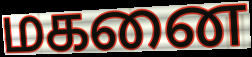
மகனை